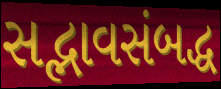
સદ્ભાવસંબદ્ધ